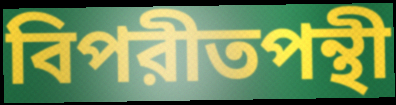
বিপরীতপন্থী